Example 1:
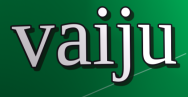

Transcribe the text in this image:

vaiju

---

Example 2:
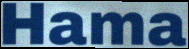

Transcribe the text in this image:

Hama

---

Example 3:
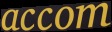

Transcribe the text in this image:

accom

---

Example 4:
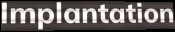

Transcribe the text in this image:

Implantation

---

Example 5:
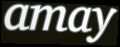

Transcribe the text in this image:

amay